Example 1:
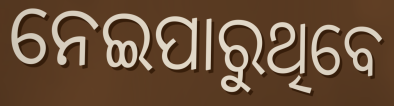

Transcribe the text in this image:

ନେଇପାରୁଥିବେ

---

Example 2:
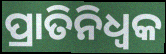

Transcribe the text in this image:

ପ୍ରାତିନିଧ୍ଵକ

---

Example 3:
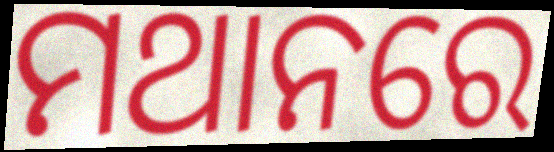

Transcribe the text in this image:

ମଥାନରେ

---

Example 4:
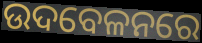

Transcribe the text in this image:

ଉଦବେଳନରେ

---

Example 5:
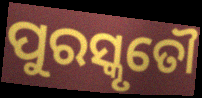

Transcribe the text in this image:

ପୁରସ୍କୃତୌ